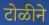
टोळीने